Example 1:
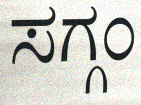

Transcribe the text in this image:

ಸಗ್ಗಂ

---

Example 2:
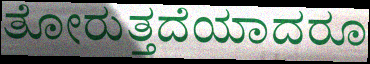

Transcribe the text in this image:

ತೋರುತ್ತದೆಯಾದರೂ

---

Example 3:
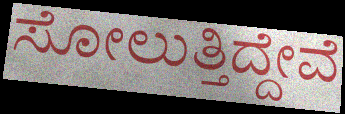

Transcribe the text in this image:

ಸೋಲುತ್ತಿದ್ದೇವೆ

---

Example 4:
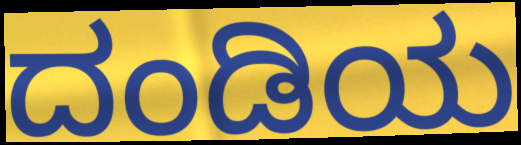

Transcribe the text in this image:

ದಂಡಿಯ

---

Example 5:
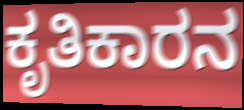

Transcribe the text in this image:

ಕೃತಿಕಾರನ